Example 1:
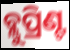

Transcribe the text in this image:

ବ୍ଲୁପ୍ରିଣ୍ଟ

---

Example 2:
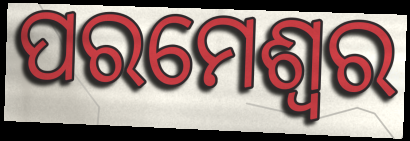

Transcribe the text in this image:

ପରମେଶ୍ୱର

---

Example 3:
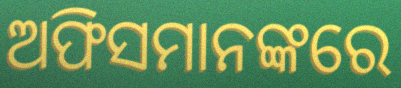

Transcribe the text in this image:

ଅଫିସମାନଙ୍କରେ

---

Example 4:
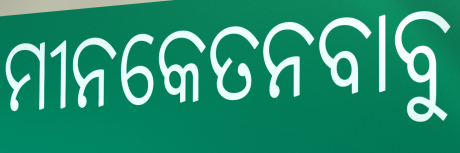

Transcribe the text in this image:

ମୀନକେତନବାବୁ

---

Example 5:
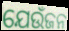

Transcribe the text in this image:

ଯେଉଁଜନ